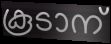
കൂടാന്